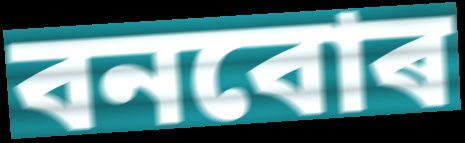
বনবোৰ